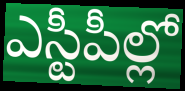
ఎస్టీపీల్లో